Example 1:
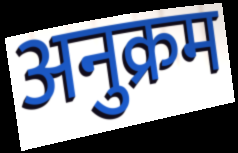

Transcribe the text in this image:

अनुक्रम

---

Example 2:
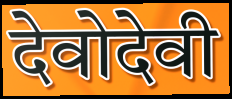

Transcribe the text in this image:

देवोदेवी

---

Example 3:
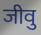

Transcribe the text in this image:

जीवु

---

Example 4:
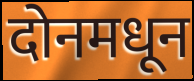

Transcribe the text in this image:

दोनमधून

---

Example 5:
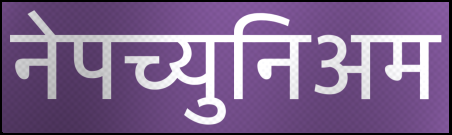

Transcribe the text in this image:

नेपच्युनिअम